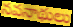
నవనాథులు